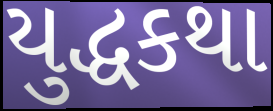
યુદ્ધકથા